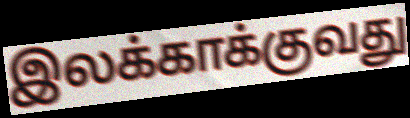
இலக்காக்குவது